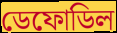
ডেফোডিল